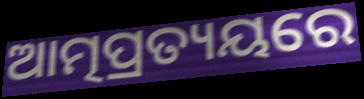
ଆତ୍ମପ୍ରତ୍ୟୟରେ